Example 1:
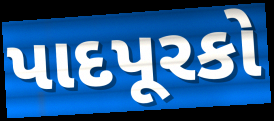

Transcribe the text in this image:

પાદપૂરકો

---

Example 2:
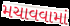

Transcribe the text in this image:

મચાવવામાં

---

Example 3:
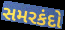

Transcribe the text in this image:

સમરકંદો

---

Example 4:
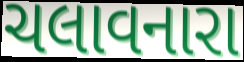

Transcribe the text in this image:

ચલાવનારા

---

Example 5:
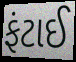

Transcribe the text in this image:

ફંટાઈ